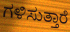
ಗಳಿಸುತ್ತಾರೆ